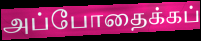
அப்போதைக்கப்